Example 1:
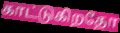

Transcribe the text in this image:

காட்டுகிறதோ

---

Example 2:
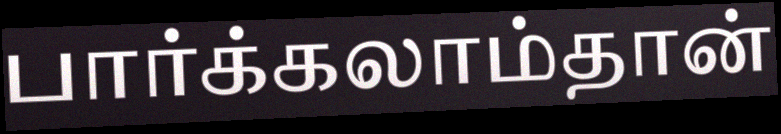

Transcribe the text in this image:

பார்க்கலாம்தான்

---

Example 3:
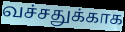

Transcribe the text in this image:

வச்சதுக்காக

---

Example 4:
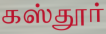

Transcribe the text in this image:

கஸ்தூர்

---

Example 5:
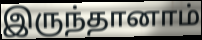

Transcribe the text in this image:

இருந்தானாம்